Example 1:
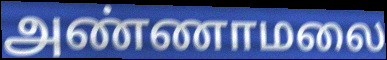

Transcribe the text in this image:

அண்ணாமலை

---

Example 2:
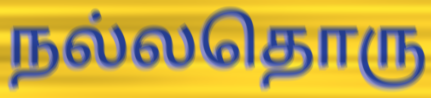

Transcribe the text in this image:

நல்லதொரு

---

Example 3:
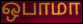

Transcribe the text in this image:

ஒபாமா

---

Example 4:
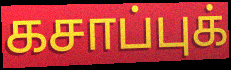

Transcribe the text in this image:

கசாப்புக்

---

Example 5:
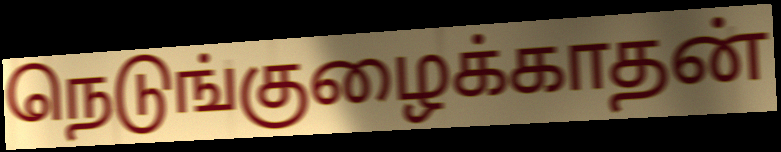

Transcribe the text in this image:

நெடுங்குழைக்காதன்